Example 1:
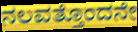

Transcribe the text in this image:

ನಲವತ್ತೊಂದನೇ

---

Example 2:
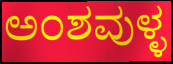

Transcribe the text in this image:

ಅಂಶವುಳ್ಳ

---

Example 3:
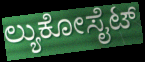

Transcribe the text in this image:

ಲ್ಯುಕೋಸೈಟ್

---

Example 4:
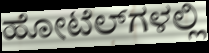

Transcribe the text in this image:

ಹೋಟೆಲ್‌ಗಳಲ್ಲಿ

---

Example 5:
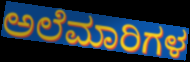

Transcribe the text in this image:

ಅಲೆಮಾರಿಗಳ